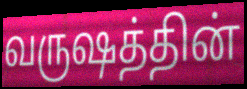
வருஷத்தின்